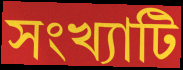
সংখ্যাটি